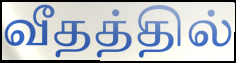
வீதத்தில்